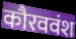
कौरववंश